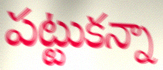
పట్టుకన్నా